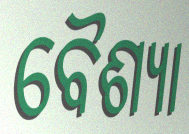
ବୈଶ୍ଯା